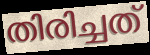
തിരിച്ചത്